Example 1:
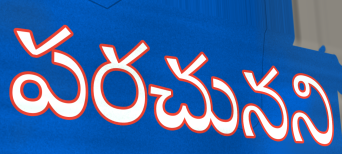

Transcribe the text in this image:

పరచునని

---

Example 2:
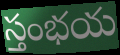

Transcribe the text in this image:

స్తంభయ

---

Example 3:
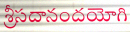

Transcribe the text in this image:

శ్రీసదానందయోగి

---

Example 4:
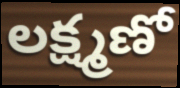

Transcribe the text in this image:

లక్ష్మణో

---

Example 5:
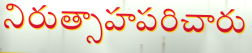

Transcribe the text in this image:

నిరుత్సాహపరిచారు